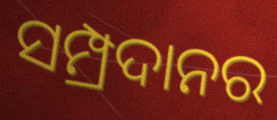
ସମ୍ପ୍ରଦାନର